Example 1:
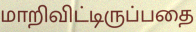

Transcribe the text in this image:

மாறிவிட்டிருப்பதை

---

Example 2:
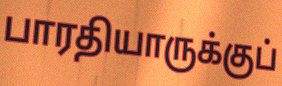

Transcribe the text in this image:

பாரதியாருக்குப்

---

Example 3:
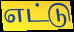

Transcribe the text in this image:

எட்டு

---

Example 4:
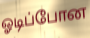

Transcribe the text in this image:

ஓடிப்போன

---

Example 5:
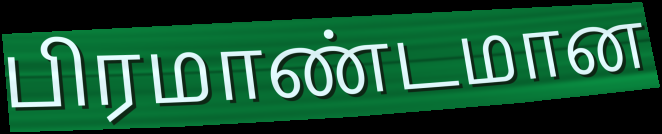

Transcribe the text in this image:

பிரமாண்டமான